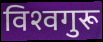
विश्वगुरू